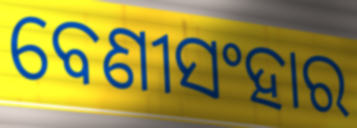
ବେଣୀସଂହାର